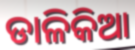
ଡାଳିକିଆ